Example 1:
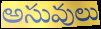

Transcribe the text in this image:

అసువులు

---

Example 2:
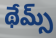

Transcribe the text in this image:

థేమ్స్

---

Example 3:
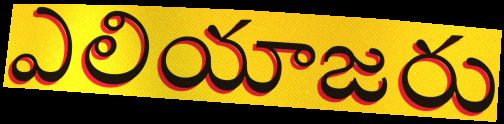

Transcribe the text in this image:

ఎలియాజరు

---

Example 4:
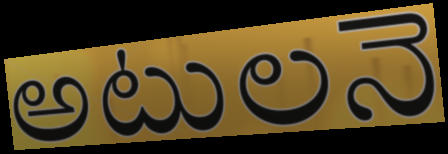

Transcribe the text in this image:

అటులనె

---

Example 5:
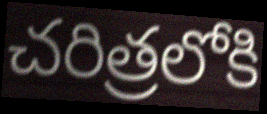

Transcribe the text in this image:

చరిత్రలోకి